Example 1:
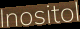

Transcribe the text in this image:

Inositol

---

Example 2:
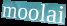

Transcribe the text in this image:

moolai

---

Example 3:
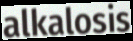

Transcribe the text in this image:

alkalosis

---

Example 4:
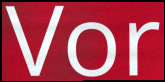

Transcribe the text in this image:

Vor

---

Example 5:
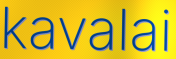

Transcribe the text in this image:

kavalai